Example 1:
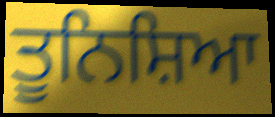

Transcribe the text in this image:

ਤੂਨਿਸ਼ਿਆ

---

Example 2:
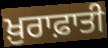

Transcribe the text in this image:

ਖ਼ੁਰਾਫ਼ਾਤੀ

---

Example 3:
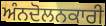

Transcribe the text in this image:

ਅੰਨਦੋਲਨਕਾਰੀ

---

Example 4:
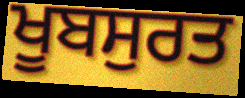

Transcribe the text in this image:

ਖੂਬਸੁਰਤ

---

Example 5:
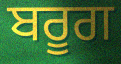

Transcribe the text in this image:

ਬਰੂਗ